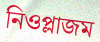
নিওপ্লাজম